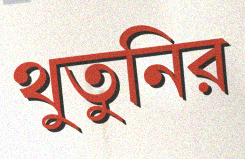
থুতুনির